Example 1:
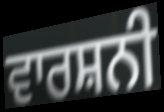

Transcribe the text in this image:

ਵਾਰਸ਼ਨੀ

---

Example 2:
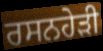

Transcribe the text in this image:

ਰਸਨਹੇੜੀ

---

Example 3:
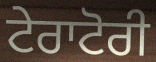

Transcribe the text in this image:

ਟੇਰਾਟੋਰੀ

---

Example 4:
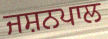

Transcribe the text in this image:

ਜਸ਼ਨਪਾਲ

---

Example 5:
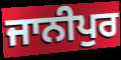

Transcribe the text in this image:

ਜਾਨੀਪੁਰ